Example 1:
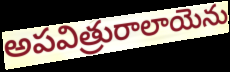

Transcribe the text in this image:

అపవిత్రురాలాయెను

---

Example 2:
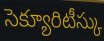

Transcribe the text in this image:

సెక్యూరిటీస్కు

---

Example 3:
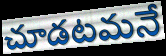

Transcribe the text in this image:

చూడటమనే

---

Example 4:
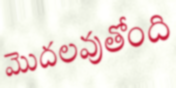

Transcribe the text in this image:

మొదలవుతోంది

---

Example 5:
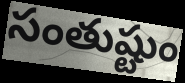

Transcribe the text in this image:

సంతుష్టుం